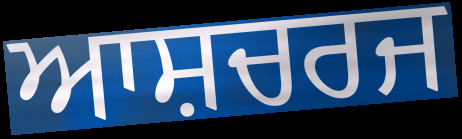
ਆਸ਼ਚਰਜ